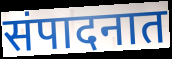
संपादनात